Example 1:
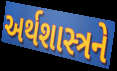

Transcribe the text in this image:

અર્થશાસ્ત્રને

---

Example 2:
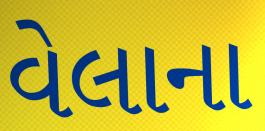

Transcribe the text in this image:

વેલાના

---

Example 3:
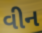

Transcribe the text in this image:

વીન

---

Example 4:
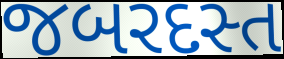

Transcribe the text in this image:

જબરદસ્ત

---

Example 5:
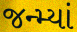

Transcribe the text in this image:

જન્મ્યાં